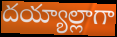
దయ్యాల్లాగా